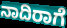
ನಾದಿರಾಗೆ